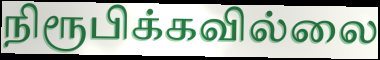
நிரூபிக்கவில்லை